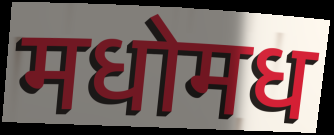
मधोमध